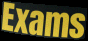
Exams